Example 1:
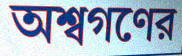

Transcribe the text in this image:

অশ্বগণের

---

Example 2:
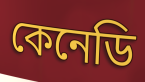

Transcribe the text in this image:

কেনেডি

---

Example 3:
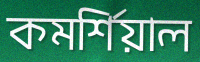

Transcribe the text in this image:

কমর্শিয়াল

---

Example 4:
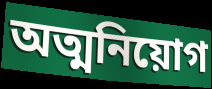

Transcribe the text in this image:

অত্মনিয়োগ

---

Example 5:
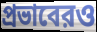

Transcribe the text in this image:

প্রভাবেরও